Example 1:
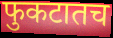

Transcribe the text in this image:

फुकटातच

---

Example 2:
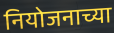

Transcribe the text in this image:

नियोजनाच्या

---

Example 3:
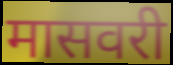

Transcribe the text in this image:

मासवरी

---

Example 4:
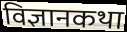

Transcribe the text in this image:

विज्ञानकथा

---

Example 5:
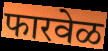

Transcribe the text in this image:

फारवेळ